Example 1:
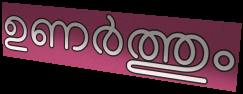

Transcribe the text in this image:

ഉണർത്തും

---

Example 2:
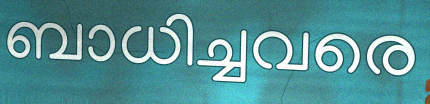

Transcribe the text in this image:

ബാധിച്ചവരെ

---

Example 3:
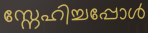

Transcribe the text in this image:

സ്നേഹിച്ചപ്പോൾ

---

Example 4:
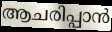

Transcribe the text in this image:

ആചരിപ്പാൻ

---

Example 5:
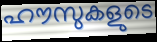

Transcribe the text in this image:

ഹൗസുകളുടെ